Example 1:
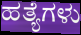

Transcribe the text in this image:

ಹತ್ಯೆಗಳು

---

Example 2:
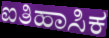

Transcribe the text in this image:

ಐತಿಹಾಸಿಕ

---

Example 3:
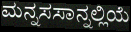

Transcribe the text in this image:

ಮನ್ನಸಸಾನ್ನಲ್ಲಿಯೆ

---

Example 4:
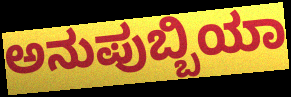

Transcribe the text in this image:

ಅನುಪುಬ್ಬಿಯಾ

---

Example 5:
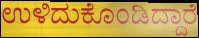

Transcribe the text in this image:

ಉಳಿದುಕೊಂಡಿದ್ದಾರೆ